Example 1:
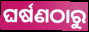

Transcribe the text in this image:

ଘର୍ଷଣଠାରୁ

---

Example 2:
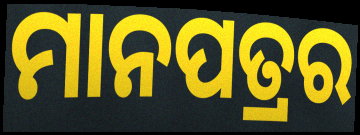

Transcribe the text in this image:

ମାନପତ୍ରର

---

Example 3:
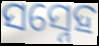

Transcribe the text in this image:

ସସ୍ନେହ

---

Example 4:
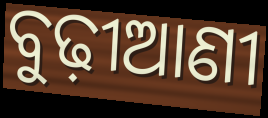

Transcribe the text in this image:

ବୁଢ଼ୀଆଣୀ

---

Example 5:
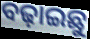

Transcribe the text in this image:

ବଢ଼ାଇଛୁ